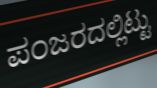
ಪಂಜರದಲ್ಲಿಟ್ಟು